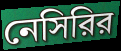
নেসিরির